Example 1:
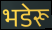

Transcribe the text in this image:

भडेरू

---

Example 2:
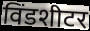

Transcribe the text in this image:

विंडशीटर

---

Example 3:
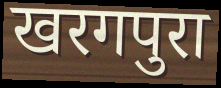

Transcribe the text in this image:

खरगपुरा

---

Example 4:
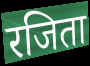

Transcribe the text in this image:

रजिता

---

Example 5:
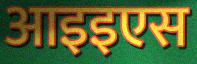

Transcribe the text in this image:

आइइएस